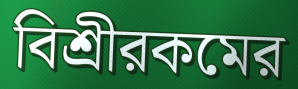
বিশ্রীরকমের